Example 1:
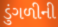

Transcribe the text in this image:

ડુંગળીની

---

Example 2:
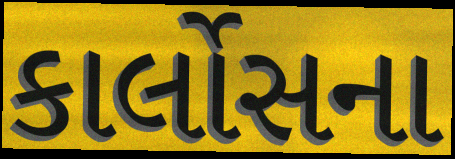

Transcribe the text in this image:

કાર્લોસના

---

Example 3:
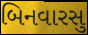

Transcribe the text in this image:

બિનવારસુ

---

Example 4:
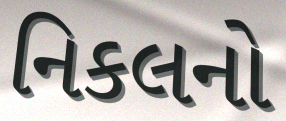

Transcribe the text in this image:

નિકલનો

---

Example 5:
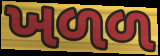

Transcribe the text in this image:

ખળળ